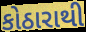
કોઠારાથી